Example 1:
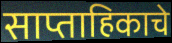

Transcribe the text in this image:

साप्ताहिकाचे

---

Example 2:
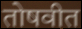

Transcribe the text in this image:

तोषवीत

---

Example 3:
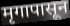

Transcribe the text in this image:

मृगापासून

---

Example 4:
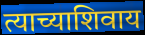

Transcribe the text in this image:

त्याच्याशिवाय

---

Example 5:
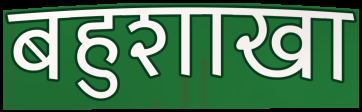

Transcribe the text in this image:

बहुशाखा